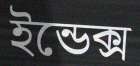
ইন্ডেক্স